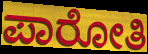
ಪಾರೋತಿ